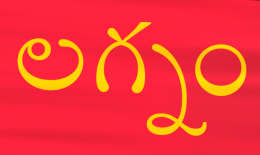
లగ్నం